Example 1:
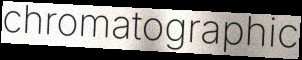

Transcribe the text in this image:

chromatographic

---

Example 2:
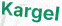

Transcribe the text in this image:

Kargel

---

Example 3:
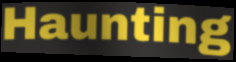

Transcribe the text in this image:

Haunting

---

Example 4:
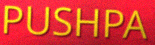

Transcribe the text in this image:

PUSHPA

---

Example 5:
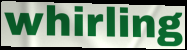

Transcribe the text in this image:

whirling